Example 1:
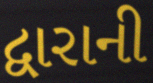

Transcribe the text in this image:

દ્વારાની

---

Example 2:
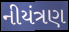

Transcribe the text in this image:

નીયંત્રણ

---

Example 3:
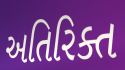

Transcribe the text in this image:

અતિરિક્ત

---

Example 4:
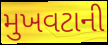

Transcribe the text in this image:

મુખવટાની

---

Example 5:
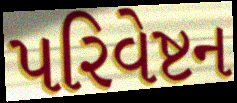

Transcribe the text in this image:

પરિવેષ્ટન